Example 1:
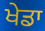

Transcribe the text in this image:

ਖੇਡਾ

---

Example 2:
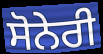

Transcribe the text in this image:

ਸੋਨੇਰੀ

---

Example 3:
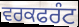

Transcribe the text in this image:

ਵਰਕਫਰੰਟ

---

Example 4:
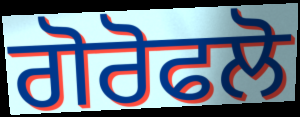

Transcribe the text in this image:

ਗੋਰੋਫਲੋ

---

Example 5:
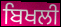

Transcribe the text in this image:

ਬਿਖਲੀ